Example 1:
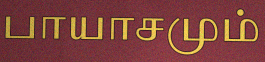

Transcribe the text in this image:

பாயாசமும்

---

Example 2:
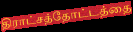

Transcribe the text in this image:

திராட்சத்தோட்டத்தை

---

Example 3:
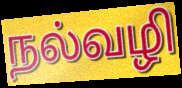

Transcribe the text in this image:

நல்வழி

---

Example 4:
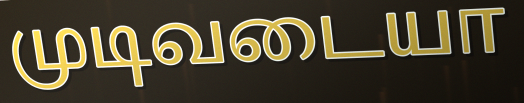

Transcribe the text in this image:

முடிவடையா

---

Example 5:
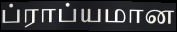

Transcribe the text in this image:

ப்ராப்யமான